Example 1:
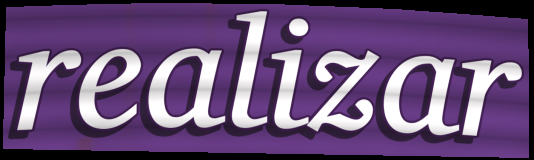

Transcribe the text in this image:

realizar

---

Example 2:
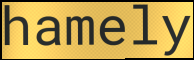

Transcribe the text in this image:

hamely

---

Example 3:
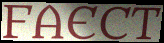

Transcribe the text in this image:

FAECT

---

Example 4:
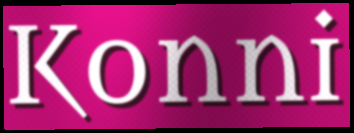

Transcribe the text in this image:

Konni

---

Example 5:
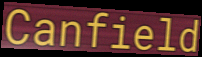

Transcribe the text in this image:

Canfield